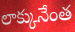
లాక్కునేంత